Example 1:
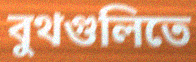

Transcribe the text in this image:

বুথগুলিতে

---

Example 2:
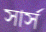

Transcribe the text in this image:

সার্স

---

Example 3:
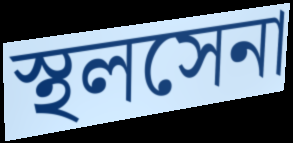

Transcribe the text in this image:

স্থলসেনা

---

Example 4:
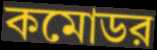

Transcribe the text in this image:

কমোডর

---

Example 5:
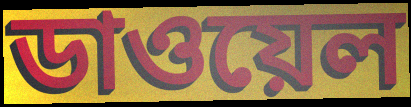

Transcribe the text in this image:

ডাওয়েল